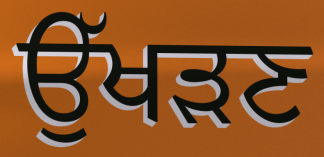
ਉੱਖੜਣ